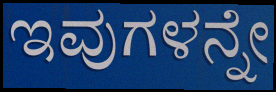
ಇವುಗಳನ್ನೇ